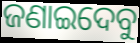
ଜଣାଇଦେବୁ